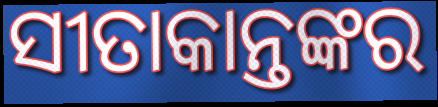
ସୀତାକାନ୍ତଙ୍କର